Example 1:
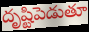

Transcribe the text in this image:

దృష్టిపెడుతూ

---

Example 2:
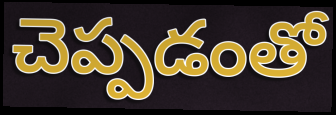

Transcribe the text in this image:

చెప్పడంతో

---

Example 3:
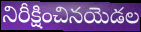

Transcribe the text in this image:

నిరీక్షించినయెడల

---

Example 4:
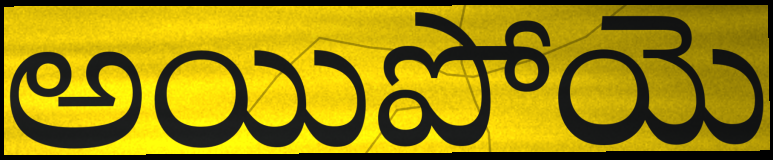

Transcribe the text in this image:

అయిపోయె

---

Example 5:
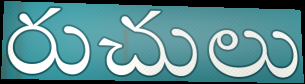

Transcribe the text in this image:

రుచులు